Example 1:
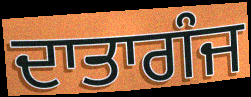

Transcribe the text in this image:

ਦਾਤਾਗੰਜ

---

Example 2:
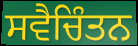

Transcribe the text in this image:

ਸਵੈਚਿੰਤਨ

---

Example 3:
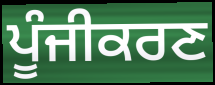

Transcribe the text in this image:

ਪੂੰਜੀਕਰਣ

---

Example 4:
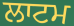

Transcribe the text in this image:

ਲਾਟਮ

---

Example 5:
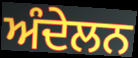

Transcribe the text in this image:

ਅੰਦੇਲਨ